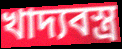
খাদ্যবস্ত্র